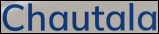
Chautala